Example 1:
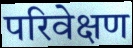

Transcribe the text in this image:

परिवेक्षण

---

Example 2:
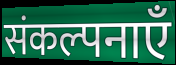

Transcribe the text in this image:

संकल्पनाएँ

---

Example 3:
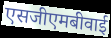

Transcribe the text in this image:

एसजीएमबीवाई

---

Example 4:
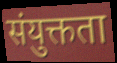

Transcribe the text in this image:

संयुक्तता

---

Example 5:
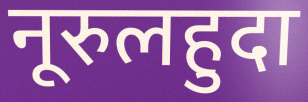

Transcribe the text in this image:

नूरुलहुदा